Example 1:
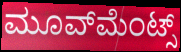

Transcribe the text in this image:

ಮೂವ್‍ಮೆಂಟ್ಸ್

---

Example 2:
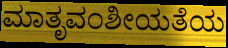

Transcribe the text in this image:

ಮಾತೃವಂಶೀಯತೆಯ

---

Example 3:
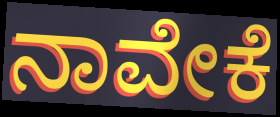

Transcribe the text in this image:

ನಾವೇಕೆ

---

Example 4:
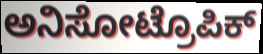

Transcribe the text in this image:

ಅನಿಸೋಟ್ರೊಪಿಕ್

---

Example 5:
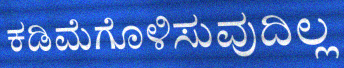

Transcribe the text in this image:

ಕಡಿಮೆಗೊಳಿಸುವುದಿಲ್ಲ